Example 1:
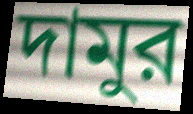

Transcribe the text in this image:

দামুর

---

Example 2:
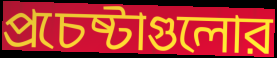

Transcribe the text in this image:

প্রচেষ্টাগুলোর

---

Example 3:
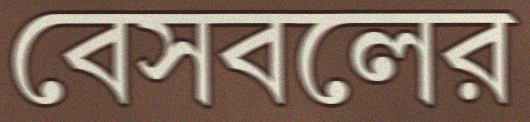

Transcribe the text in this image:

বেসবলের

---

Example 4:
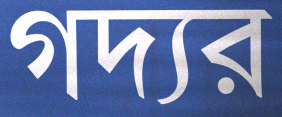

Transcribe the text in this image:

গদ্যর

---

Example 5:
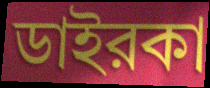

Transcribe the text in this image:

ডাইরকা